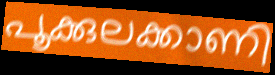
പൂക്കുലക്കാണി